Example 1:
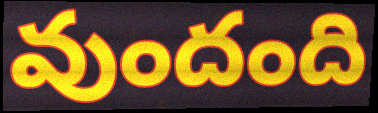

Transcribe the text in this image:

వుందంది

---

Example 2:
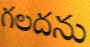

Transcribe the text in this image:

గలదను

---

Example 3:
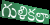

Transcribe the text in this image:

గుళికలా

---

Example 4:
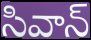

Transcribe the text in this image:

సివాన్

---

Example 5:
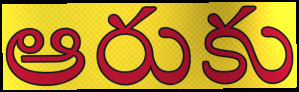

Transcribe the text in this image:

ఆరుకు